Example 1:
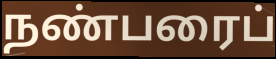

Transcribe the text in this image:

நண்பரைப்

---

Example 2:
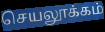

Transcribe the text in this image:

செயலூக்கம்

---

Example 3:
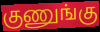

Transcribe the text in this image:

குணுங்கு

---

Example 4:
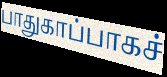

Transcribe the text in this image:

பாதுகாப்பாகச்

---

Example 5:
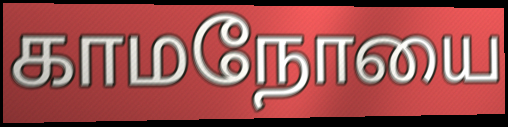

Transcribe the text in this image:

காமநோயை